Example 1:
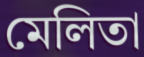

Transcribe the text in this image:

মেলিতা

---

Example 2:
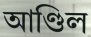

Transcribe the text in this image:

আণ্ডিল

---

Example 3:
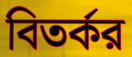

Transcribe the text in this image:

বিতর্কর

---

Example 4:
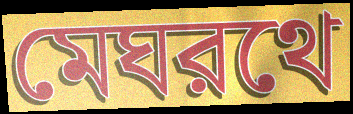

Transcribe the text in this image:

মেঘরথে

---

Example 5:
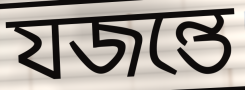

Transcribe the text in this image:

যজন্তে